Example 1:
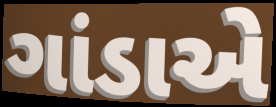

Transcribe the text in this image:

ગાંડાએ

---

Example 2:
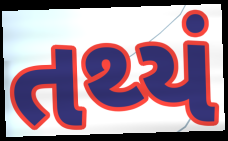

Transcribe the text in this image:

તથ્યં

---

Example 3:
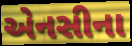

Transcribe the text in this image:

એનસીના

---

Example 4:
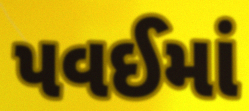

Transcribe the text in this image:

પવઈમાં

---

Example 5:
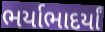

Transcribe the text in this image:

ભર્યાભાદર્યાં